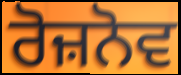
ਰੋਜ਼ਨੋਵ